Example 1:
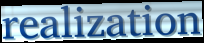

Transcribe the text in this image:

realization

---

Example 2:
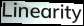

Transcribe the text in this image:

Linearity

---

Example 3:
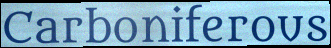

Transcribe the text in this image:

Carboniferous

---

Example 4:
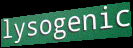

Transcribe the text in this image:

lysogenic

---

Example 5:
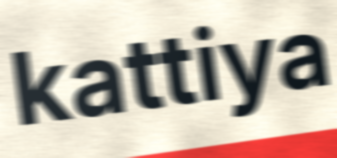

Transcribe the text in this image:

kattiya